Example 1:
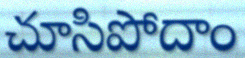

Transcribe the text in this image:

చూసిపోదాం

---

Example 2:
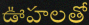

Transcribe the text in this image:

ఊహలతో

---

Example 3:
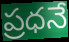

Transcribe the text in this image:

ప్రధనే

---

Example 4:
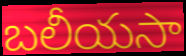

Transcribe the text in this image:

బలీయసా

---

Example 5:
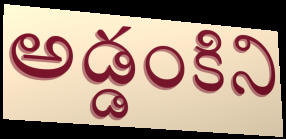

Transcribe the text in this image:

అడ్డంకిని